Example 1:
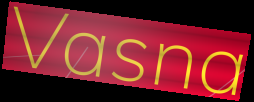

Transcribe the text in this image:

Vasna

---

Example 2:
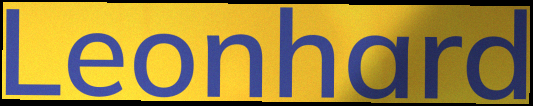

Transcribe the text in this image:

Leonhard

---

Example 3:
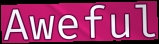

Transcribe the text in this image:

Aweful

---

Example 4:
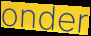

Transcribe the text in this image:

onder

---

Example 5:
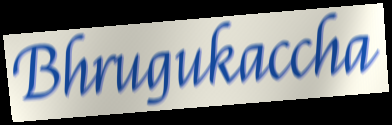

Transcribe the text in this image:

Bhrugukaccha